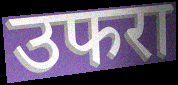
उफरा